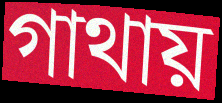
গাথায়